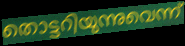
തൊട്ടറിയുന്നുവെന്ന്